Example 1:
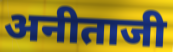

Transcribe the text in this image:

अनीताजी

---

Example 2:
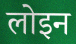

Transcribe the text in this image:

लोइन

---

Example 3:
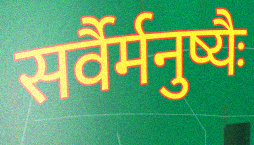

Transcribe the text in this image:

सर्वैर्मनुष्यैः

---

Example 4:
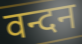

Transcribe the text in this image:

वन्दन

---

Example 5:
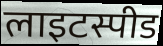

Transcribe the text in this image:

लाइटस्पीड